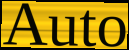
Auto